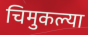
चिमुकल्या